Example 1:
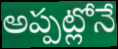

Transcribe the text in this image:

అప్పట్లోనే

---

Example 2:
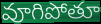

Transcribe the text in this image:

వూగిపోతూ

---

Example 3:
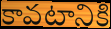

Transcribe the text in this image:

కావటానికి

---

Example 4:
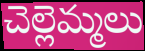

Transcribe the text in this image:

చెల్లెమ్మలు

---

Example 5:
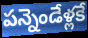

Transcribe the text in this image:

పన్నెండేళ్లకే